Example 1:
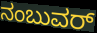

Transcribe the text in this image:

ನಂಬುವರ್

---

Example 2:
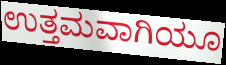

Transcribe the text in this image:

ಉತ್ತಮವಾಗಿಯೂ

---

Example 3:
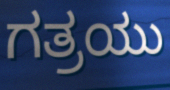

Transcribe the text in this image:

ಗತ್ರಯು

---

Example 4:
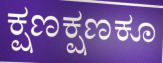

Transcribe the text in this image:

ಕ್ಷಣಕ್ಷಣಕೂ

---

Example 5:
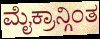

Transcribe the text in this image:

ಮೈಕ್ರಾನ್ಗಿಂತ